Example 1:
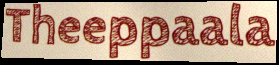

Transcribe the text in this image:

Theeppaala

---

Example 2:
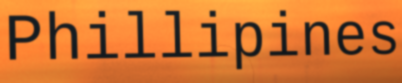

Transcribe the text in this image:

Phillipines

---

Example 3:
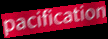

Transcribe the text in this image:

pacification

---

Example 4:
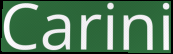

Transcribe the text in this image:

Carini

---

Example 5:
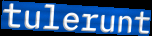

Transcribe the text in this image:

tulerunt